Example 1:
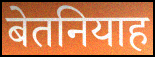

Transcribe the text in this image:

बेतनियाह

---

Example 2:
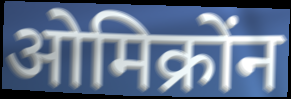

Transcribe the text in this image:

ओमिक्रोंन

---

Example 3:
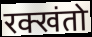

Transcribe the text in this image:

रक्खंतो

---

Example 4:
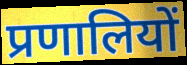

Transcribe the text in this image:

प्रणालियों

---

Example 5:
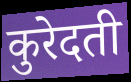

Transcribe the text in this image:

कुरेदती